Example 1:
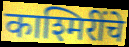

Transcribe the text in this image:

काश्मिरींचे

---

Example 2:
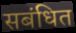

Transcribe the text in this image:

सबंधित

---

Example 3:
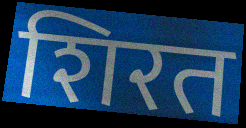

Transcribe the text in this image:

शिरत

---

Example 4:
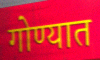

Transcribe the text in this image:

गोण्यात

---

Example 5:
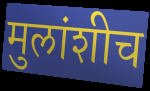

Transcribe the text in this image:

मुलांशीच